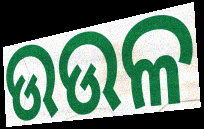
ଉଉଳ